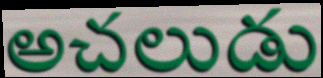
అచలుడు